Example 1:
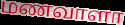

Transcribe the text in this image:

மணவாளா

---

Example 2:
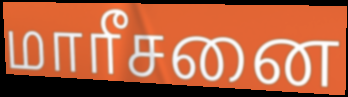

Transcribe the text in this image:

மாரீசனை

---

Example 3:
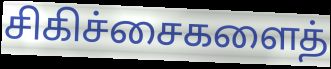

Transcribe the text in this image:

சிகிச்சைகளைத்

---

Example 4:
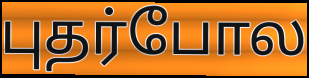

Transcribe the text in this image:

புதர்போல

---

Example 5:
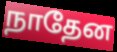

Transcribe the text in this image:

நாதேன